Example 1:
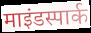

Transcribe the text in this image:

माइंडस्पार्क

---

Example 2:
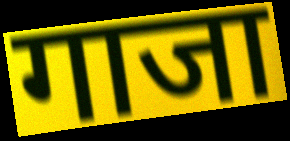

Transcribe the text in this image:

गाजा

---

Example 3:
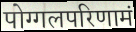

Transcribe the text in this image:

पोग्गलपरिणामं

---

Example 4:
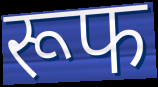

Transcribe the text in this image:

रूफ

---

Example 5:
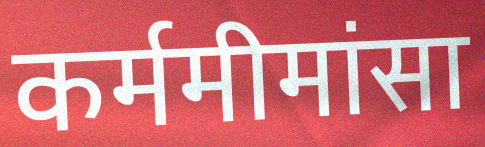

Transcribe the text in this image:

कर्ममीमांसा